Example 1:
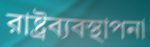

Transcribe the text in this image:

রাষ্ট্রব্যবস্থাপনা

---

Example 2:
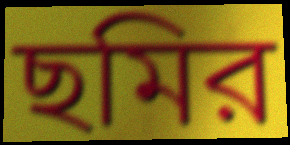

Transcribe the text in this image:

ছমির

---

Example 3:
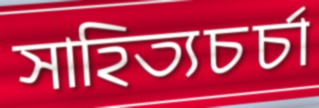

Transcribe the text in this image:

সাহিত্যচর্চা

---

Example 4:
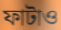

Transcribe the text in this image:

ফাটাও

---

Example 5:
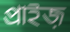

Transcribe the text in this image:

প্রাইজ়